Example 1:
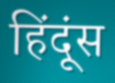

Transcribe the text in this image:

हिंदूंस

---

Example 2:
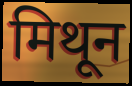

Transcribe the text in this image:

मिथून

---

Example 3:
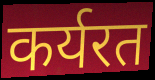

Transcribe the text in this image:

कर्यरत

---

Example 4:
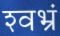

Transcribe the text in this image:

श्वभ्रं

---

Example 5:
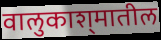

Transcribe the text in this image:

वालुकाश्मातील